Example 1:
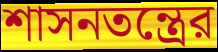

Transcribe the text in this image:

শাসনতন্ত্রের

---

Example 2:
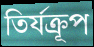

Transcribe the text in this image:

তির্যক্রূপ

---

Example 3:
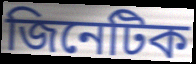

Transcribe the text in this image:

জিনেটিক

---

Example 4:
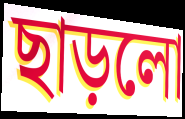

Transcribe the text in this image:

ছাড়লো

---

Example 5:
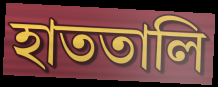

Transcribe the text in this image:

হাততালি